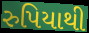
રુપિયાથી